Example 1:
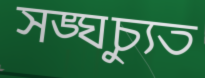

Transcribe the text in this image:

সঙ্ঘচ্যুত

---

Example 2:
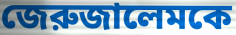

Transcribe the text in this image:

জেরুজালেমকে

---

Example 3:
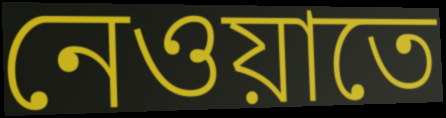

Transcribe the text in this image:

নেওয়াতে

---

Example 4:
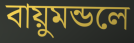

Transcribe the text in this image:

বায়ুমন্ডলে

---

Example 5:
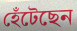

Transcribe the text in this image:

হেঁটেছেন